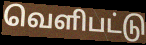
வெளிபட்டு